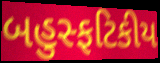
બહુસ્ફટિકીય